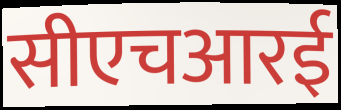
सीएचआरई